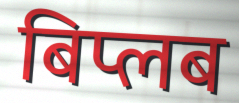
बिप्लब